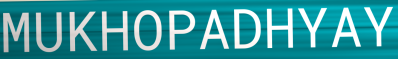
MUKHOPADHYAY